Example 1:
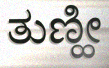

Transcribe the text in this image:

ತುಣ್ಹೀ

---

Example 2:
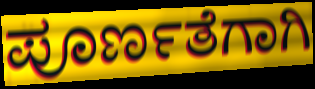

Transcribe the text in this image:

ಪೂರ್ಣತೆಗಾಗಿ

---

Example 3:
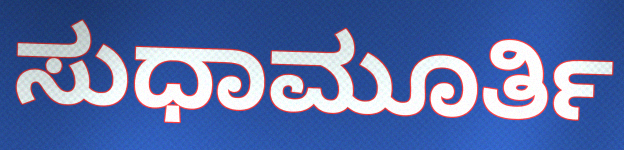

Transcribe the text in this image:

ಸುಧಾಮೂರ್ತಿ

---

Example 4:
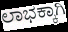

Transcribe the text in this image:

ಲಾಭಕ್ಕಾಗಿ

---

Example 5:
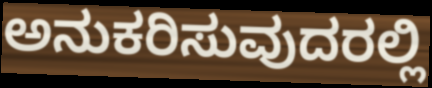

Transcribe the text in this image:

ಅನುಕರಿಸುವುದರಲ್ಲಿ